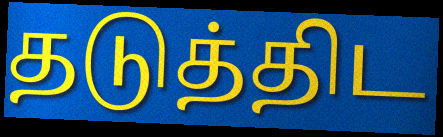
தடுத்திட